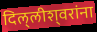
दिल्लीश्वरांना